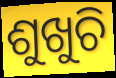
ଶୁଖୁଚି